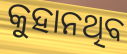
କୁହାନଥିବ